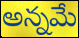
అన్నమే